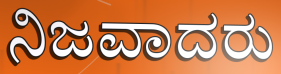
ನಿಜವಾದರು